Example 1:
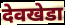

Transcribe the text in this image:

देवखेडा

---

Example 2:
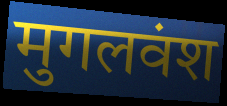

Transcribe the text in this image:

मुगलवंश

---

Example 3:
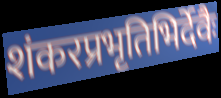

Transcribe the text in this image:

शंकरप्रभृतिभिर्देवैः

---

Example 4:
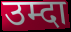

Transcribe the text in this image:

उम्‍दा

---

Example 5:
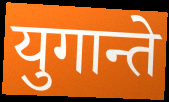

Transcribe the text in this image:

युगान्ते